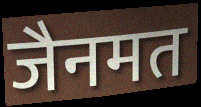
जैनमत